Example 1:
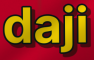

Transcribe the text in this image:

daji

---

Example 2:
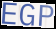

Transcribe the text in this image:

EGP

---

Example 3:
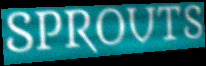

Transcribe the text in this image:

SPROUTS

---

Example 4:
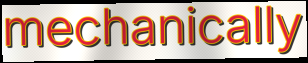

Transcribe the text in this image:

mechanically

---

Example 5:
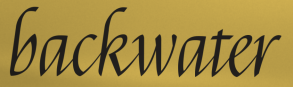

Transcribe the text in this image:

backwater